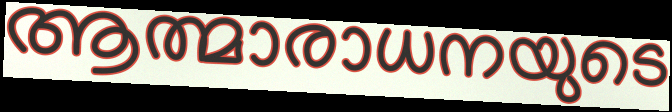
ആത്മാരാധനയുടെ